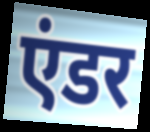
एंडर